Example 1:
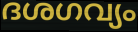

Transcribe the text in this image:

ദശഗവ്യം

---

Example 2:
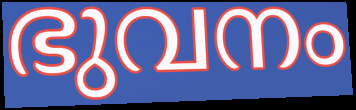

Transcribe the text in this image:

ഭുവനം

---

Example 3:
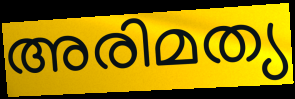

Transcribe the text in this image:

അരിമത്യ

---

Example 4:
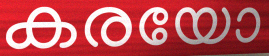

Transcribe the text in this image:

കരയോ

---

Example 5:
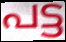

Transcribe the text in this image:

പട്ട